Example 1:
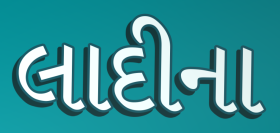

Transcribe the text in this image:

લાદીના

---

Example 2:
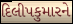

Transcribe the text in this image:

દિલીપકુમારને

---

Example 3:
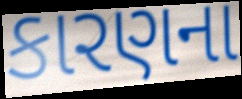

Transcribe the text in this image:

કારણના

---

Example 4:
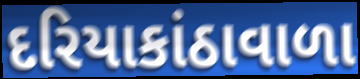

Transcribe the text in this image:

દરિયાકાંઠાવાળા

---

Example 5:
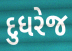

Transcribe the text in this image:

દુધરેજ